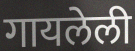
गायलेली